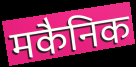
मकैनिक